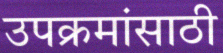
उपक्रमांसाठी